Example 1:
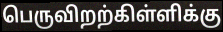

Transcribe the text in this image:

பெருவிறற்கிள்ளிக்கு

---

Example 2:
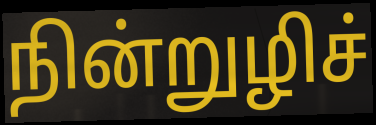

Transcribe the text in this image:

நின்றுழிச்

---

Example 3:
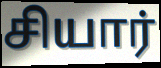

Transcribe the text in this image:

சியார்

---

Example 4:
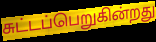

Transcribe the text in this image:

சுட்டப்பெறுகின்றது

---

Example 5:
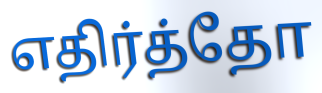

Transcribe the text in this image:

எதிர்த்தோ